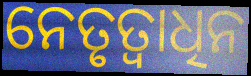
ନେତୃତ୍ୱାଧିନ